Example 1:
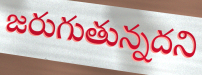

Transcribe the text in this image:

జరుగుతున్నదని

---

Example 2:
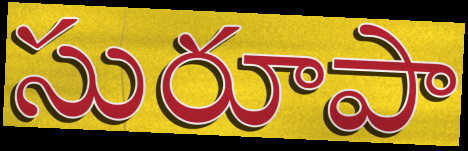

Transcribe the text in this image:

సురూపా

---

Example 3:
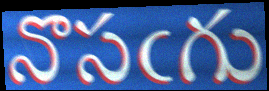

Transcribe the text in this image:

నొసఁగు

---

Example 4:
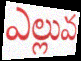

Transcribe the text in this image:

ఎల్లువ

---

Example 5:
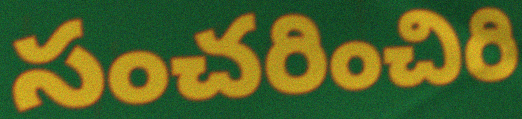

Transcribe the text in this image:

సంచరించిరి